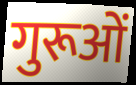
गुरूओं